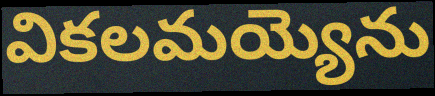
వికలమయ్యెను